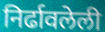
निर्ढावलेली